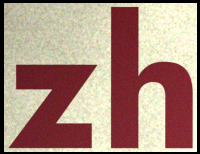
zh